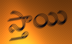
స్తాయి